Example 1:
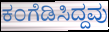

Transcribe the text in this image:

ಕಂಗೆಡಿಸಿದ್ದವು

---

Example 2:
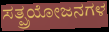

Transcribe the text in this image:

ಸತ್ಪ್ರಯೋಜನಗಳ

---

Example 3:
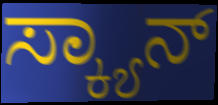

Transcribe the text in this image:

ಸ್ಕ್ಯಾನ್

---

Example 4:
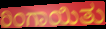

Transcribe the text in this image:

ರಿಂಗಾಯಿತು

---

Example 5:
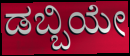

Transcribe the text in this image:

ಡಬ್ಬಿಯೇ